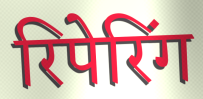
रिपेरिंग